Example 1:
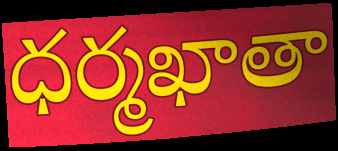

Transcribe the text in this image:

ధర్మఖాతా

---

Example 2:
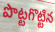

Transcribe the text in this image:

పొట్టగొట్టిన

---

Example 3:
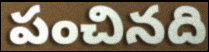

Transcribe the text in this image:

పంచినది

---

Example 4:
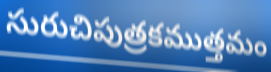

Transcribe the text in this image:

సురుచిపుత్రకముత్తమం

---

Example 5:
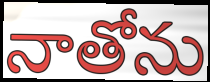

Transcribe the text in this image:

నాతోను